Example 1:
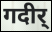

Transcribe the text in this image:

गदीर्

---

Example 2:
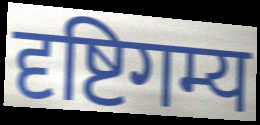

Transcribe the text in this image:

दृष्टिगम्य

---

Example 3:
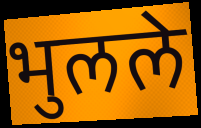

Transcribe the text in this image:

भुलले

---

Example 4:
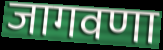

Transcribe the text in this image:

जागवणा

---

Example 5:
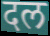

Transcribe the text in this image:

दल